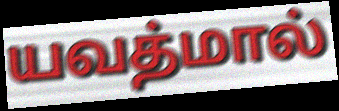
யவத்மால்